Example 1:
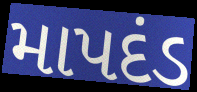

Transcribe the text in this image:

માપદંડ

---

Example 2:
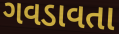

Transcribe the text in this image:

ગવડાવતા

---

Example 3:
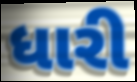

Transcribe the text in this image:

ધારી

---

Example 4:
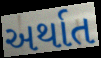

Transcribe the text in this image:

અર્થાત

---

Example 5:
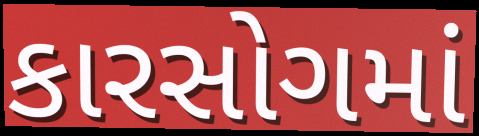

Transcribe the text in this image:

કારસોગમાં